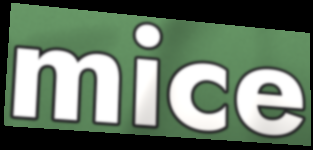
mice